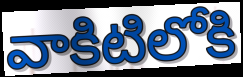
వాకిటిలోకి